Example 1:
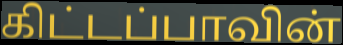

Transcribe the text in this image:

கிட்டப்பாவின்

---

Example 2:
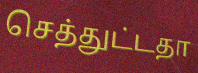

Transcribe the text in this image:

செத்துட்டதா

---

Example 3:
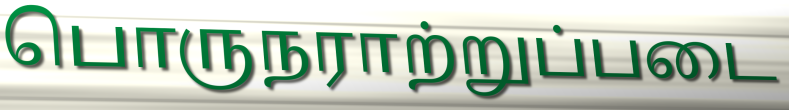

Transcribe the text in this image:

பொருநராற்றுப்படை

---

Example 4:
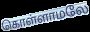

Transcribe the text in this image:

கொள்ளாமலே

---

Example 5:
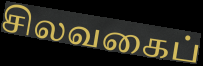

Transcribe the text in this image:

சிலவகைப்